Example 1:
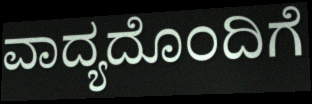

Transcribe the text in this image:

ವಾದ್ಯದೊಂದಿಗೆ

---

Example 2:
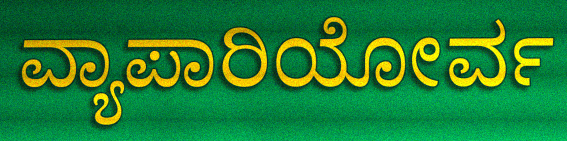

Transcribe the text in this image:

ವ್ಯಾಪಾರಿಯೋರ್ವ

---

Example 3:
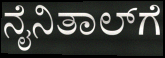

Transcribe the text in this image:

ನೈನಿತಾಲ್‌ಗೆ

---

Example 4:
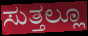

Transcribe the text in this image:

ಸುತ್ತಲ್ಲೂ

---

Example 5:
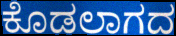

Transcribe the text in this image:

ಕೊಡಲಾಗದ